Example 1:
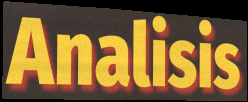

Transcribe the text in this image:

Analisis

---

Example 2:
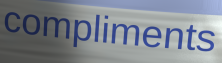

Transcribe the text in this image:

compliments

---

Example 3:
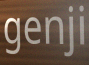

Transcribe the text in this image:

genji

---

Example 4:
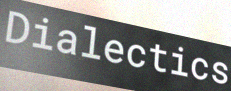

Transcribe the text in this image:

Dialectics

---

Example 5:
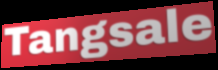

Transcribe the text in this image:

Tangsale